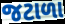
જટાળા